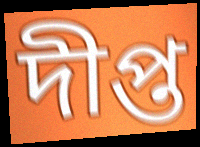
দীপ্ত